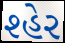
શ્હેર